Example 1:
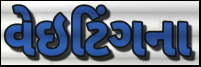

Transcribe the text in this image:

વેઇટિંગના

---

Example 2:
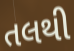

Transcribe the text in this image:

તલથી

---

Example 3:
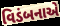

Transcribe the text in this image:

વિડંબનાએ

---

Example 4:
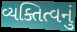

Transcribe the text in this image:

વ્યક્તિત્વનું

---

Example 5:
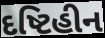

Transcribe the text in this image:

દષ્ટિહીન